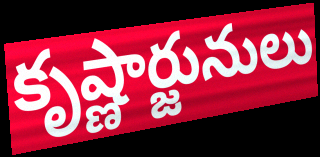
కృష్ణార్జునులు